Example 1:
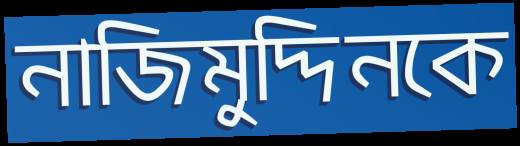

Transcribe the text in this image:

নাজিমুদ্দিনকে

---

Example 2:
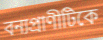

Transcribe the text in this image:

বন্যপ্রাণীটিকে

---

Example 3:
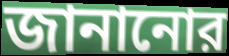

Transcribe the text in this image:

জানানোর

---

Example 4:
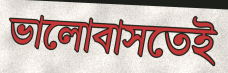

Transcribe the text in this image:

ভালোবাসতেই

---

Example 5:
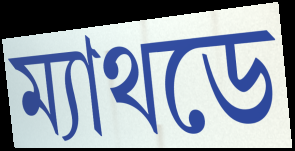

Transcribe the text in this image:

ম্যাথডে